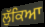
ਲੁੱਕਿਆ